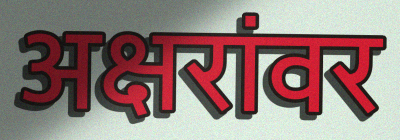
अक्षरांवर